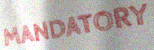
MANDATORY